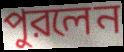
পুরলেন